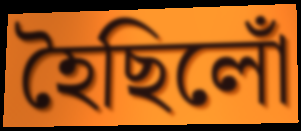
হৈছিলোঁ